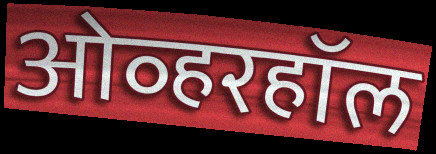
ओव्हरहॉल